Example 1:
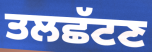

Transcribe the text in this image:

ਤਲਛੱਟਣ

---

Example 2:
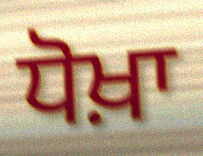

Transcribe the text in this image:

ਧੋਖ਼ਾ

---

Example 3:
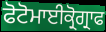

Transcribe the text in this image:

ਫੋਟੋਮਾਈਕ੍ਰੋਗ੍ਰਾਫ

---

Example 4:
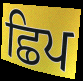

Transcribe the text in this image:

ਛਿਪ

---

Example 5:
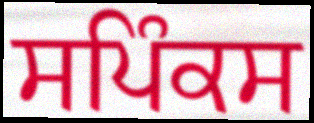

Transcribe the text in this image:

ਸਪਿੰਕਸ